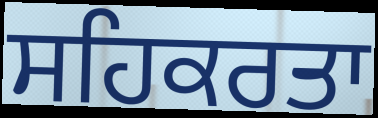
ਸਹਿਕਰਤਾ